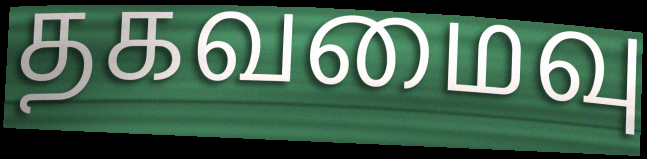
தகவமைவு